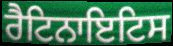
ਰੈਟਿਨਾਇਟਿਸ